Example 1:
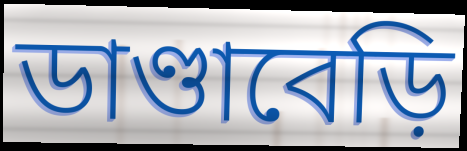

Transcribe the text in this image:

ডাণ্ডাবেড়ি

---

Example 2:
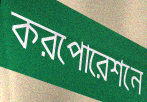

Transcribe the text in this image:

করপোরেশনে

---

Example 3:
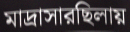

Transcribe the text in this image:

মাদ্রাসারছিলায়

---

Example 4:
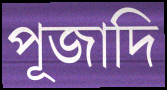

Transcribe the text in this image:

পূজাদি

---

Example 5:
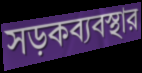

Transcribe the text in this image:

সড়কব্যবস্থার